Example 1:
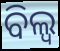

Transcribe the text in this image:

ବିଲ୍ଵ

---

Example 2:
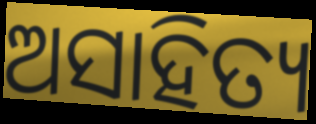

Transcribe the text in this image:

ଅସାହିତ୍ୟ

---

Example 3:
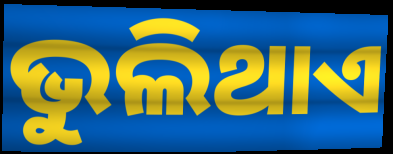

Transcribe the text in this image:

ଭୁଲିଥାଏ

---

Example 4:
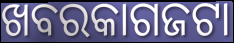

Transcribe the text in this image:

ଖବରକାଗଜଟା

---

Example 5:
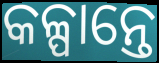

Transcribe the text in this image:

କଳ୍ପାନ୍ତେ